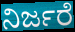
ನಿರ್ಜರೆ